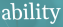
ability